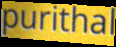
purithal